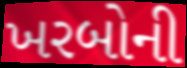
ખરબોની